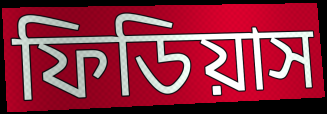
ফিডিয়াস